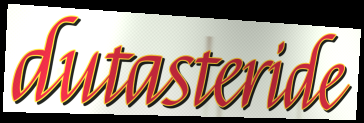
dutasteride